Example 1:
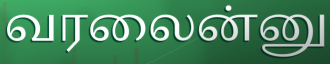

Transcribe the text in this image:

வரலைன்னு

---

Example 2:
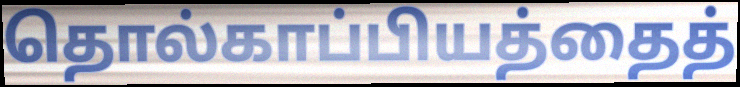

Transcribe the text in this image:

தொல்காப்பியத்தைத்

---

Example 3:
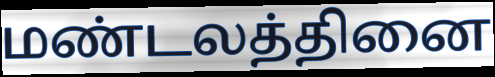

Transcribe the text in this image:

மண்டலத்தினை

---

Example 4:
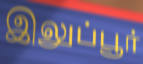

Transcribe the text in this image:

இலுப்பூர்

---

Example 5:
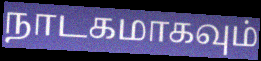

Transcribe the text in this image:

நாடகமாகவும்